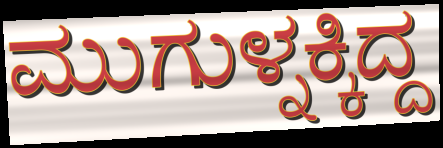
ಮುಗುಳ್ನಕ್ಕಿದ್ದ